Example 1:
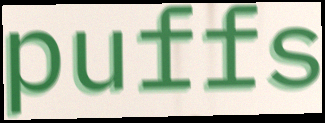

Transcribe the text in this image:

puffs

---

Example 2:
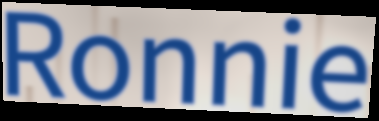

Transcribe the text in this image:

Ronnie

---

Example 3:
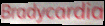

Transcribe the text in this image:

Bradycardia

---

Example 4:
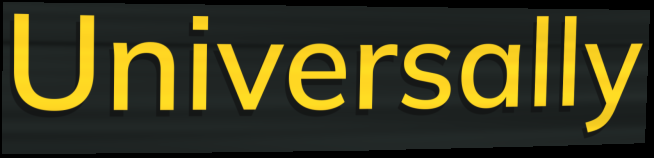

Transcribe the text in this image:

Universally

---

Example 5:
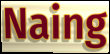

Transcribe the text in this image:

Naing